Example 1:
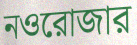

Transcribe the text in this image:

নওরোজার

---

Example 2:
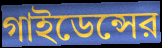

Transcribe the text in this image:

গাইডেন্সের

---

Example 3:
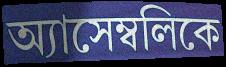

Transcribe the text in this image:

অ্যাসেম্বলিকে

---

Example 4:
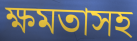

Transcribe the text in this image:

ক্ষমতাসহ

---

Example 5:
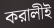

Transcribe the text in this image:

করালীই